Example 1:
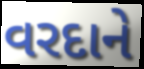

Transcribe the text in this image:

વરદાને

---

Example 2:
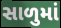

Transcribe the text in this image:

સાળુમાં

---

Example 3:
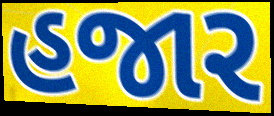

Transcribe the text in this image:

હજાર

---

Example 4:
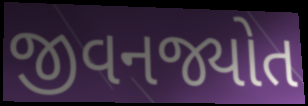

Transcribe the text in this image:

જીવનજ્યોત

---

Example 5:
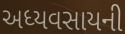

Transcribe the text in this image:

અધ્યવસાયની